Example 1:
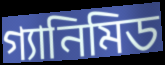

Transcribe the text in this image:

গ্যানিমিড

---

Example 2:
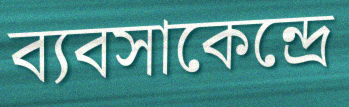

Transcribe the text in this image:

ব্যবসাকেন্দ্রে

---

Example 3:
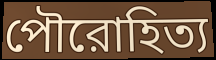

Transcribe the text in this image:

পৌরোহিত্য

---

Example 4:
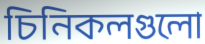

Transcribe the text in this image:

চিনিকলগুলো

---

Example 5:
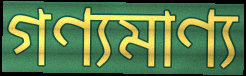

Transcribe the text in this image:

গণ্যমাণ্য